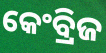
କେଂବ୍ରିଜ